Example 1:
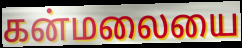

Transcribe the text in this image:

கன்மலையை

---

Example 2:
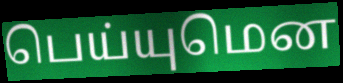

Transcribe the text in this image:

பெய்யுமென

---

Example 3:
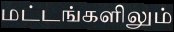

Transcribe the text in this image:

மட்டங்களிலும்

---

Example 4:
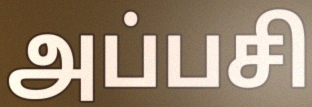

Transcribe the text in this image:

அப்பசி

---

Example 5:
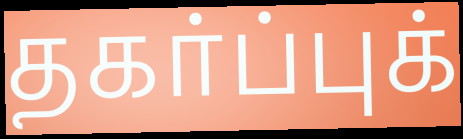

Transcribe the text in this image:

தகர்ப்புக்